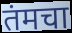
तंमचा